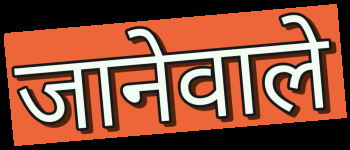
जानेवाले